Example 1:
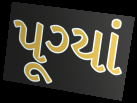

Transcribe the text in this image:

પૂગ્યાં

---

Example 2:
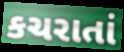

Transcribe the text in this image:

કચરાતાં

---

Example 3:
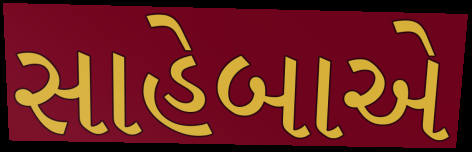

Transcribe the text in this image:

સાહેબાએ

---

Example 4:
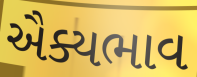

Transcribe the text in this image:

ઐક્યભાવ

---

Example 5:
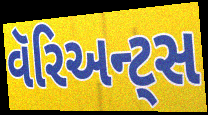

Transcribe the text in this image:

વૅરિઅન્ટ્સ